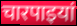
चारपाइयां